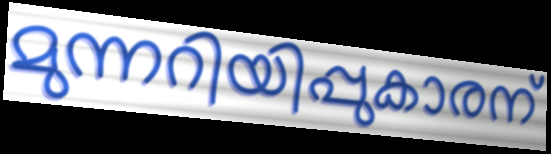
മുന്നറിയിപ്പുകാരന്